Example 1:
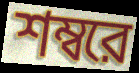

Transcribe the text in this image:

শম্বরে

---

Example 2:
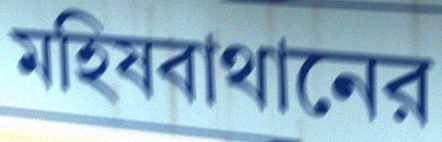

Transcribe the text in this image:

মহিষবাথানের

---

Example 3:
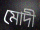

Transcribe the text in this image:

মোদী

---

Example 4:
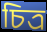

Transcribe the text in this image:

চিত্র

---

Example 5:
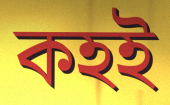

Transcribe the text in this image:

কহই